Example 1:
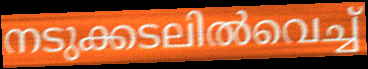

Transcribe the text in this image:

നടുക്കടലിൽവെച്ച്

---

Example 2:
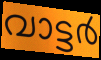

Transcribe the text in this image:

വാട്ടർ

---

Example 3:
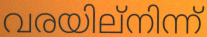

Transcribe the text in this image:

വരയില്നിന്ന്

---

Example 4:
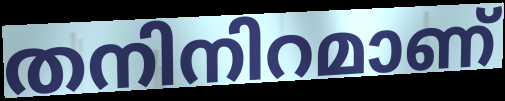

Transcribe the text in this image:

തനിനിറമാണ്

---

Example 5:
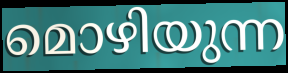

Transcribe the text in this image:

മൊഴിയുന്ന